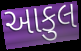
આકુલ